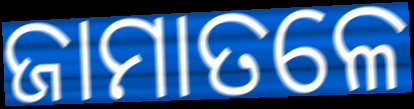
ଜାମାତଳେ